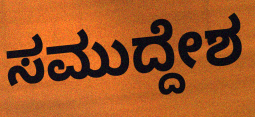
ಸಮುದ್ದೇಶ